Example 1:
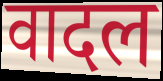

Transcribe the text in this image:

वादल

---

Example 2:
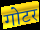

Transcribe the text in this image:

गोटर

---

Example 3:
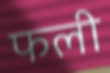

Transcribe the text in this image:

फली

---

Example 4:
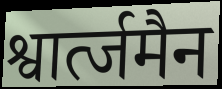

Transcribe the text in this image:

श्वार्त्जमैन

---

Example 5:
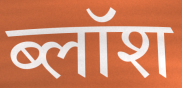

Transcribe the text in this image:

ब्लॉश